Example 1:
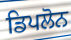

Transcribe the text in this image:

ਡਿਪਲੋਨ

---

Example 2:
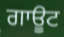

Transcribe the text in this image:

ਗਾਊਟ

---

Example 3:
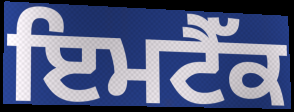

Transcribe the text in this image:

ਇਮਟੈੱਕ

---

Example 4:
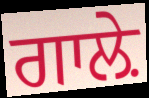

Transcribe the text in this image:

ਗਾਲ਼ੇ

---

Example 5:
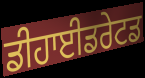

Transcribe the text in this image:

ਡੀਹਾਈਡਰੇਟਡ